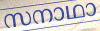
സനാഥാ